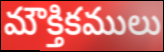
మౌక్తికములు